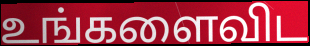
உங்களைவிட